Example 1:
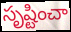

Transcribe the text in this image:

సృష్టించా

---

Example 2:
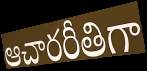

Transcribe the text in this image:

ఆచారరీతిగా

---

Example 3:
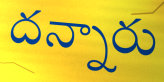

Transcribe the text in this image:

దన్నారు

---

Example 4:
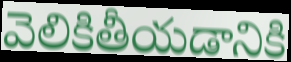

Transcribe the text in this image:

వెలికితీయడానికి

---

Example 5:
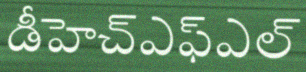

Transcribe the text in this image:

డీహెచ్ఎఫ్ఎల్